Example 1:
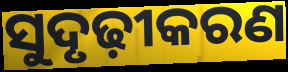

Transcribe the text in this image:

ସୁଦୃଢ଼ୀକରଣ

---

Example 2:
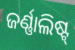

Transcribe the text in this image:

ଜର୍ଣ୍ଣାଲିଷ୍ଟ୍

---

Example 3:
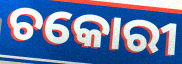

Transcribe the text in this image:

ଚକୋରୀ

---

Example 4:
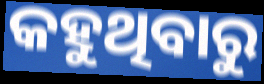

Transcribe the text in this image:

କହୁଥିବାରୁ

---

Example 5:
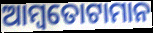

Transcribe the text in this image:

ଆମ୍ବତୋଟାମାନ